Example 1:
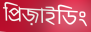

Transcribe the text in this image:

প্রিজ়াইডিং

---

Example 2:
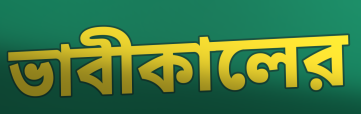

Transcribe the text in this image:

ভাবীকালের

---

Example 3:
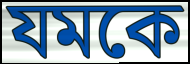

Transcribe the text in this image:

যমকে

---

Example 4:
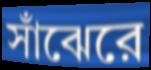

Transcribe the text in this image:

সাঁঝেরে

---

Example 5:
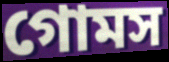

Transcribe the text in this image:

গোমস